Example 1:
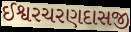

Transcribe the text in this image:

ઈશ્વરચરણદાસજી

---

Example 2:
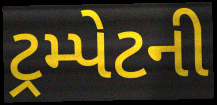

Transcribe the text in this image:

ટ્રમ્પેટની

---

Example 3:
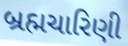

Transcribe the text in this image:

બ્રહ્મચારિણી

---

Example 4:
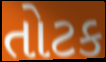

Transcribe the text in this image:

તોટક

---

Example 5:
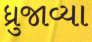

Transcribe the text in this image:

ધ્રુજાવ્યા